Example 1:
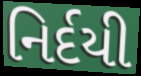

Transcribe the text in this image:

નિર્દયી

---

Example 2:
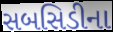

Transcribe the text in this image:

સબસિડીના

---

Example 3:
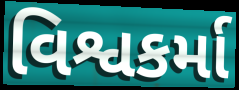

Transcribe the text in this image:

વિશ્વકર્મા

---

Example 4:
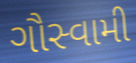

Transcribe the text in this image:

ગૌસ્વામી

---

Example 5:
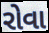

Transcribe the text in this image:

રોવા